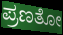
ಪ್ರಣತೋ